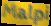
Malpi